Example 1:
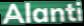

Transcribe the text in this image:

Alanti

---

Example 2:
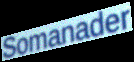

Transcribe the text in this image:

Somanader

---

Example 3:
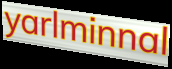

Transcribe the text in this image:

yarlminnal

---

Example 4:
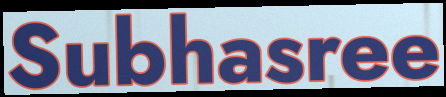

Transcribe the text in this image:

Subhasree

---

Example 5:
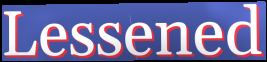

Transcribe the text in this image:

Lessened